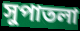
সুপাতলা